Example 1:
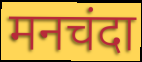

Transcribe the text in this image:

मनचंदा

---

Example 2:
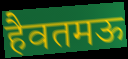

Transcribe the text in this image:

हैवतमऊ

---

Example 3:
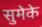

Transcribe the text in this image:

सुमेके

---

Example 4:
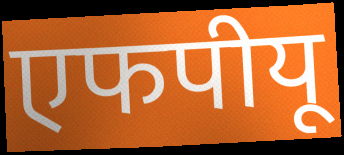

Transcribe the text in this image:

एफपीयू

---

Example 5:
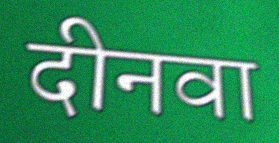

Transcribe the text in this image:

दीनवा